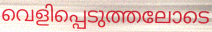
വെളിപ്പെടുത്തലോടെ